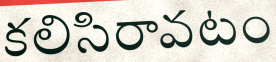
కలిసిరావటం